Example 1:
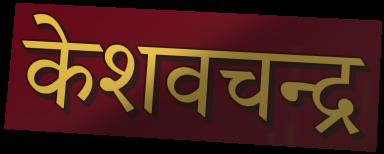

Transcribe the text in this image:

केशवचन्द्र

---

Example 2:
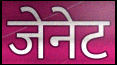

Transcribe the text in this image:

जेनेट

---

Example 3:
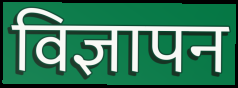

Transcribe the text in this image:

विज्ञापन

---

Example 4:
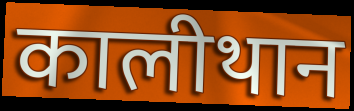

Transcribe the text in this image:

कालीथान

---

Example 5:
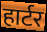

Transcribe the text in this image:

हार्टर